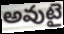
అవుటై